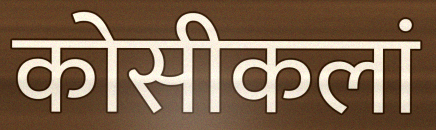
कोसीकलां